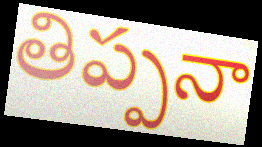
తిప్పనా